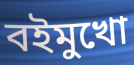
বইমুখো